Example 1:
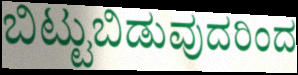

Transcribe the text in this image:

ಬಿಟ್ಟುಬಿಡುವುದರಿಂದ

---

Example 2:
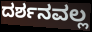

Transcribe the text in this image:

ದರ್ಶನವಲ್ಲ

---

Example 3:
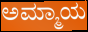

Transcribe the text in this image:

ಅಮ್ಮಾಯ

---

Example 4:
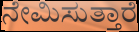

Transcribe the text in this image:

ನೇಮಿಸುತ್ತಾರೆ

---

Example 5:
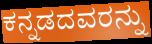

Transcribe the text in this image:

ಕನ್ನಡದವರನ್ನು